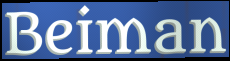
Beiman